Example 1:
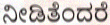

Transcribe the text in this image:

ನೀಡಿತೆಂದರೆ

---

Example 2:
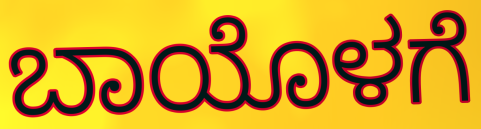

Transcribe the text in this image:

ಬಾಯೊಳಗೆ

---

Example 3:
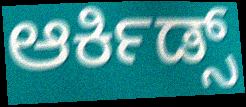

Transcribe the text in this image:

ಆರ್ಕಿಡ್ಸ್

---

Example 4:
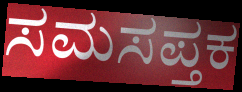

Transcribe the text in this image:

ಸಮಸಪ್ತಕ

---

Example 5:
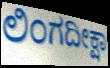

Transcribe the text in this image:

ಲಿಂಗದೀಕ್ಷಾ